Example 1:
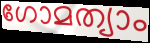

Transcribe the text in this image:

ഗോമത്യാം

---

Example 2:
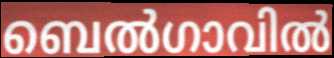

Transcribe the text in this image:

ബെൽഗാവിൽ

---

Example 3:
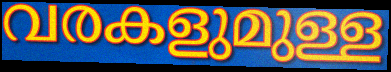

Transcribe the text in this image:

വരകളുമുള്ള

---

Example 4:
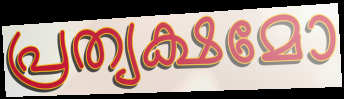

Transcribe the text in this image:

പ്രത്യക്ഷമോ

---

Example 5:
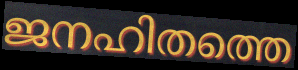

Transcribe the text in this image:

ജനഹിതത്തെ